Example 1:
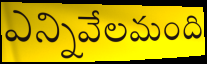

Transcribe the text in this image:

ఎన్నివేలమంది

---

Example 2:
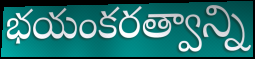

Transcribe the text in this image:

భయంకరత్వాన్ని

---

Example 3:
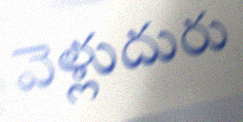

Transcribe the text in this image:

వెళ్లుదురు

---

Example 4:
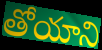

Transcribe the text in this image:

తోయాని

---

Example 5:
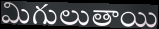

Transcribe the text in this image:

మిగులుతాయి